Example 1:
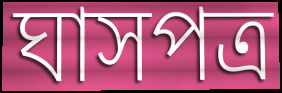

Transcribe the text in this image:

ঘাসপত্র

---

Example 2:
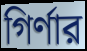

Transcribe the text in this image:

গির্ণার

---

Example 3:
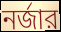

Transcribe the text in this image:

নর্জার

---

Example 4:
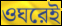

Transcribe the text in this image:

ওঘরেই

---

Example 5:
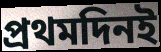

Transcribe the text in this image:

প্রথমদিনই